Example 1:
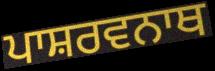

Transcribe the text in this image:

ਪਾਸ਼ਰਵਨਾਥ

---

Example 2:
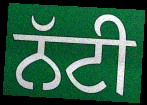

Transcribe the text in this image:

ਨੱਟੀ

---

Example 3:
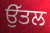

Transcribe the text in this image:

ਉੱਤਲ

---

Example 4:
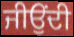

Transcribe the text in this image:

ਜੀਉਂਦੀ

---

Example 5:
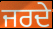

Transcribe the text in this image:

ਜਰਦੇ